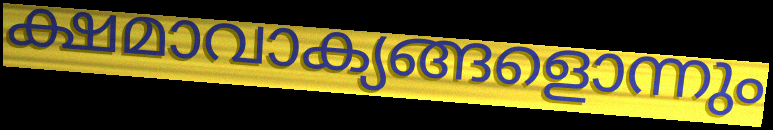
ക്ഷമാവാക്യങ്ങളൊന്നും